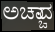
ಅಚ್ಚಾದ